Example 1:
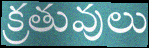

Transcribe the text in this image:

క్రతువులు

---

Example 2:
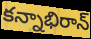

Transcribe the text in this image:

కన్నాభిరాన్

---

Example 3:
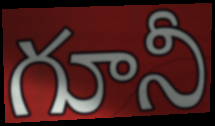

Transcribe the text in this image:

గూనీ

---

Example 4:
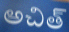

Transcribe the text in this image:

అచిత్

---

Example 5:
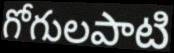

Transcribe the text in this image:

గోగులపాటి